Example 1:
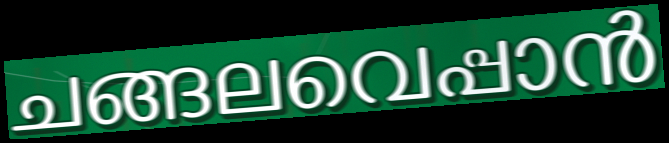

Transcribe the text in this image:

ചങ്ങലവെപ്പാൻ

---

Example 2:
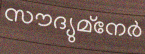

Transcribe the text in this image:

സൗദ്യുമ്നേർ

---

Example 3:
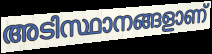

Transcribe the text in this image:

അടിസ്ഥാനങ്ങളാണ്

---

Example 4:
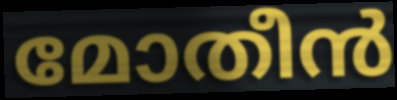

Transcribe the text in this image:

മോതീൻ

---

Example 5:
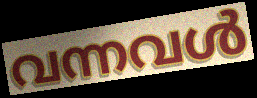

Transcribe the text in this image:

വന്നവൾ